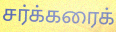
சர்க்கரைக்